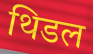
थिडल